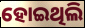
ହୋଇଥିଲି